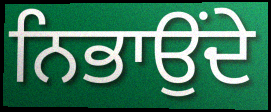
ਨਿਭਾਉਂਦੇ